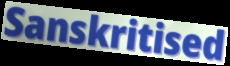
Sanskritised